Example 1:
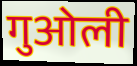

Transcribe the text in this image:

गुओली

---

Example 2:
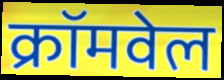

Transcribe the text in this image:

क्रॉमवेल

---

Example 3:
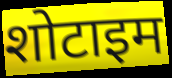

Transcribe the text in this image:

शोटाइम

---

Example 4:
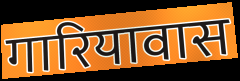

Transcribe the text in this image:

गारियावास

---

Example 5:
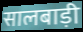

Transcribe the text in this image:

सालबाड़ी